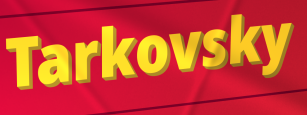
Tarkovsky